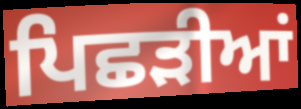
ਪਿਛੜੀਆਂ